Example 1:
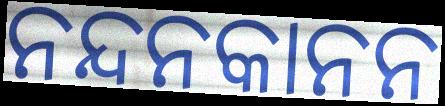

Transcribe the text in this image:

ନନ୍ଦନକାନନ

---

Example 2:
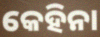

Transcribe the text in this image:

କେହିନା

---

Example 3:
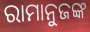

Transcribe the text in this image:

ରାମାନୁଜଙ୍କ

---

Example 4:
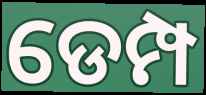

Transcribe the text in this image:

ଡେମ୍ପ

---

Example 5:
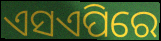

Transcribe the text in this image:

ଏସଏପିରେ